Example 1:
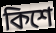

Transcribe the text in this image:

কিশে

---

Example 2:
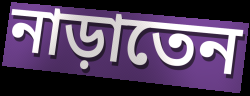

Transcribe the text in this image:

নাড়াতেন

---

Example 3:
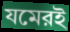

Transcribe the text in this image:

যমেরই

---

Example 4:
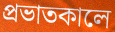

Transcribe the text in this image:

প্রভাতকালে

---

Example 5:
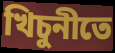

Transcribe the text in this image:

খিচুনীতে